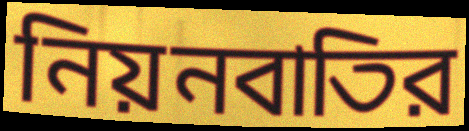
নিয়নবাতির